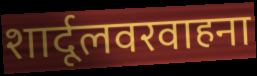
शार्दूलवरवाहना